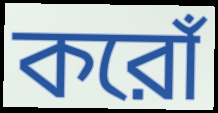
করোঁ